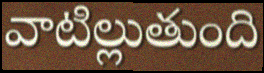
వాటిల్లుతుంది